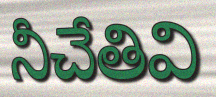
నీచేతివి